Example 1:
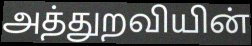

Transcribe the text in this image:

அத்துறவியின்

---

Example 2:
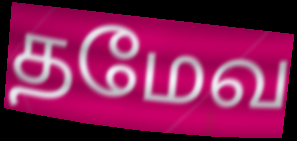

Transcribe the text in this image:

தமேவ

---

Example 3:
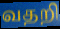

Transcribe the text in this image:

வதறி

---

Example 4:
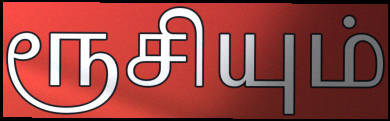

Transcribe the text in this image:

ரூசியும்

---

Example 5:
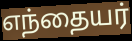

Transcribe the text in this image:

எந்தையர்